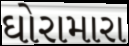
ઘોરામારા